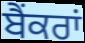
ਬੈਂਕਰਾਂ